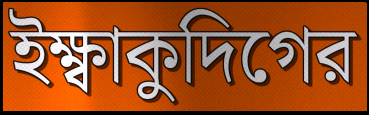
ইক্ষ্বাকুদিগের